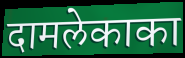
दामलेकाका